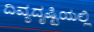
ದಿವ್ಯದೃಷ್ಟಿಯಲ್ಲಿ